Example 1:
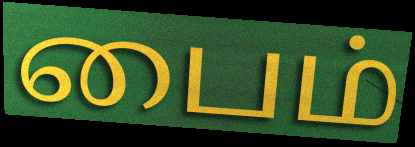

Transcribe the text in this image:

பைம்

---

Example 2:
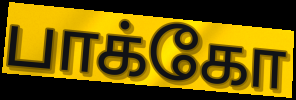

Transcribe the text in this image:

பாக்கோ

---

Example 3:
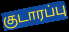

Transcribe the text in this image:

குடாரப்பு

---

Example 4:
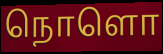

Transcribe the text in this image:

நொளொ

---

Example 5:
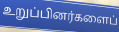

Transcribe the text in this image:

உறுப்பினர்களைப்